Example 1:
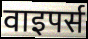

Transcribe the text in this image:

वाइपर्स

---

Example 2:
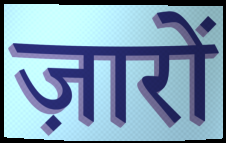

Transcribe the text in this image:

ज़ारों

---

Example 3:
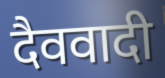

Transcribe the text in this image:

दैववादी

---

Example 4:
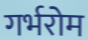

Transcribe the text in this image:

गर्भरोम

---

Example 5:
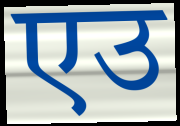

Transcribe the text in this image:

एउ